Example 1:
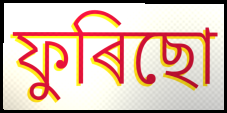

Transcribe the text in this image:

ফুৰিছো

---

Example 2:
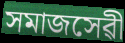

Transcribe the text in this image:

সমাজসেৱী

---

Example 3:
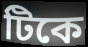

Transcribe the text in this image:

টিকে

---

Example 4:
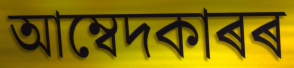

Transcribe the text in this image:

আম্বেদকাৰৰ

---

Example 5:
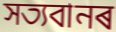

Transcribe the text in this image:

সত্যবানৰ